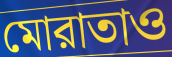
মোরাতাও